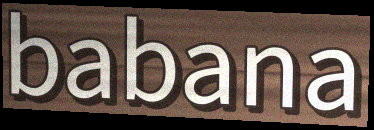
babana